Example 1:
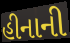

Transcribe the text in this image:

હીનાની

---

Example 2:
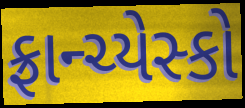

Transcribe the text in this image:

ફ્રાન્ચ્યેસ્કો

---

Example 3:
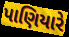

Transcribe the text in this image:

પાણિયારે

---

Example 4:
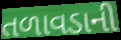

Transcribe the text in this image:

તળાવડાની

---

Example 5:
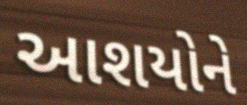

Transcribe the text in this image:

આશયોને